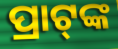
ପ୍ରାଟ୍‍ଙ୍କ